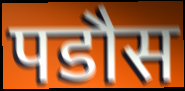
पडौस